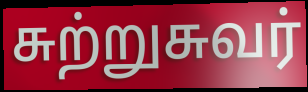
சுற்றுசுவர்